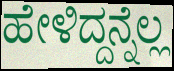
ಹೇಳಿದ್ದನ್ನೆಲ್ಲ